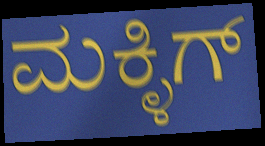
ಮಕ್ಳಿಗ್